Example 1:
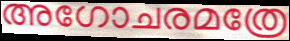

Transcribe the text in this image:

അഗോചരമത്രേ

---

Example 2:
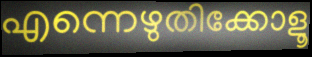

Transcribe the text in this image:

എന്നെഴുതിക്കോളൂ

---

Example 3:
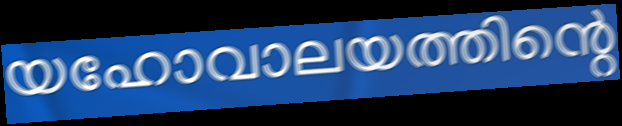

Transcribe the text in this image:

യഹോവാലയത്തിന്റെ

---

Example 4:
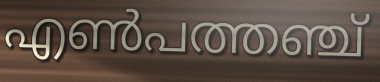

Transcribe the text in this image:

എൺപത്തഞ്ച്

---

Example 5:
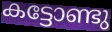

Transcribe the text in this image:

കട്ടോണ്ടു